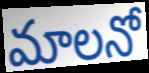
మాలనో